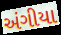
અંગીયા